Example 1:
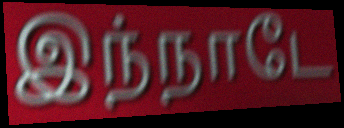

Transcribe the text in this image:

இந்நாடே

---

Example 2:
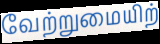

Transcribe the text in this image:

வேற்றுமையிற்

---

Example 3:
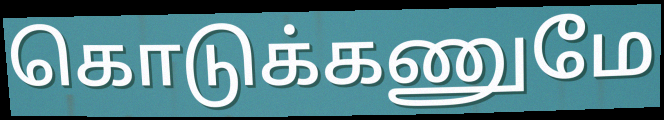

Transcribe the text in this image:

கொடுக்கணுமே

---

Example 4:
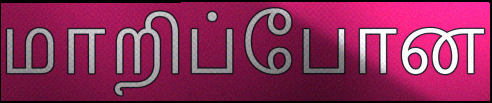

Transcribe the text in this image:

மாறிப்போன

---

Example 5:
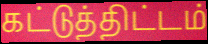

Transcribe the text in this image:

கட்டுத்திட்டம்